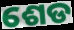
ଶେଡ